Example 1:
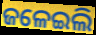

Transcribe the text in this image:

ଜଳେଇଲି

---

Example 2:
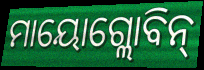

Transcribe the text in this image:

ମାୟୋଗ୍ଲୋବିନ୍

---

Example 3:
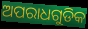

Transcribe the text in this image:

ଅପରାଧଗୁଡିକ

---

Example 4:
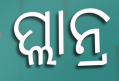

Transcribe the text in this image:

ପ୍ଲାନ୍ର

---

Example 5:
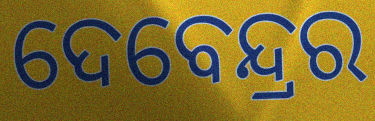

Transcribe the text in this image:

ଦେବେନ୍ଦ୍ରର